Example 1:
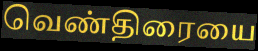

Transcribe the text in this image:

வெண்திரையை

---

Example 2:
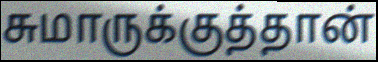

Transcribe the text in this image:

சுமாருக்குத்தான்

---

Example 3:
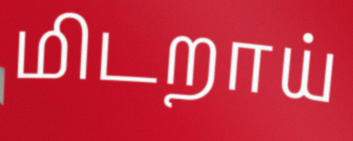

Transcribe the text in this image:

மிடறாய்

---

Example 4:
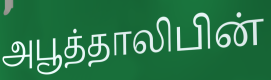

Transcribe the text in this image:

அபூத்தாலிபின்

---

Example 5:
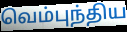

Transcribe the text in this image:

வெம்புந்திய